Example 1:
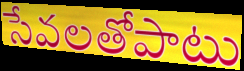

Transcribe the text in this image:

సేవలతోపాటు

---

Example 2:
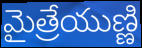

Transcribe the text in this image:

మైత్రేయుణ్ణి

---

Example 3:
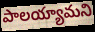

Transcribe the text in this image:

పాలయ్యామని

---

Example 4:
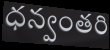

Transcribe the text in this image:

ధన్వంతరి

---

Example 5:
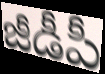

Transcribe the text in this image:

జీడీపీ